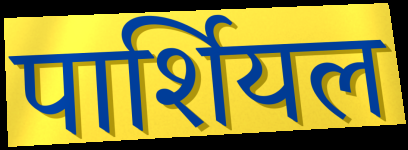
पार्शियल